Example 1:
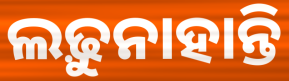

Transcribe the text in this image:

ଲଢ଼ୁନାହାନ୍ତି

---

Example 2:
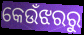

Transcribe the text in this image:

କେଉଁଝରରୁ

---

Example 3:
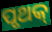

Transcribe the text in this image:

ପୃଥକ୍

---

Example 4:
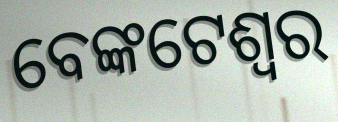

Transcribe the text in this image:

ବେଙ୍କଟେଶ୍ୱର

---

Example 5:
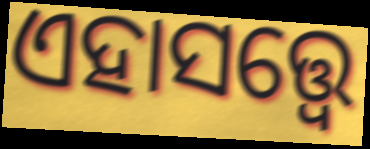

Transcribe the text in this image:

ଏହାସତ୍ତ୍ବେ